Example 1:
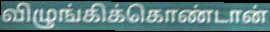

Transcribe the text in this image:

விழுங்கிக்கொண்டான்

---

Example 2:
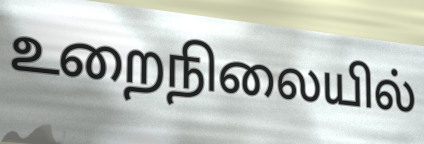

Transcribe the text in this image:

உறைநிலையில்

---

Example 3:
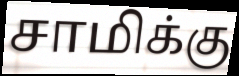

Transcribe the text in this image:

சாமிக்கு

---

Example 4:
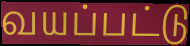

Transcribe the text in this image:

வயப்பட்டு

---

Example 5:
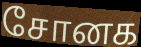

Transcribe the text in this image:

சோனக